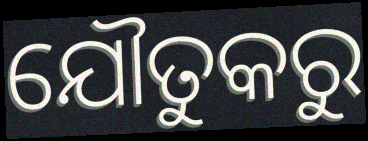
ଯୌତୁକରୁ